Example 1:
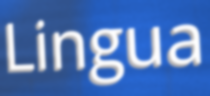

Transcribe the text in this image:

Lingua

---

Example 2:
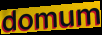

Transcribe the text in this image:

domum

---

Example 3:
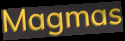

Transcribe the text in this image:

Magmas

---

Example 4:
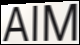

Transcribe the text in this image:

AIM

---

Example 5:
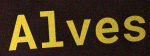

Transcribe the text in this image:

Alves